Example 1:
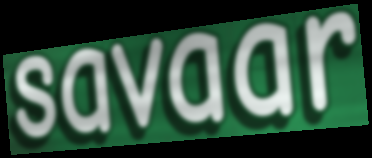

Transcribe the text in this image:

savaar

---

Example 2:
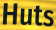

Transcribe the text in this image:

Huts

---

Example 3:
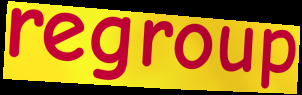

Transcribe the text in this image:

regroup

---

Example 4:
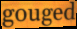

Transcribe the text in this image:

gouged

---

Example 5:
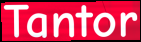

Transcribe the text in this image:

Tantor